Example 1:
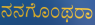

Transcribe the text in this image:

ನನಗೊಂಥರಾ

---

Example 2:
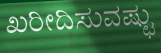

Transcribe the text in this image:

ಖರೀದಿಸುವಷ್ಟು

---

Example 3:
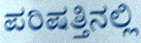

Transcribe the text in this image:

ಪರಿಷತ್ತಿನಲ್ಲಿ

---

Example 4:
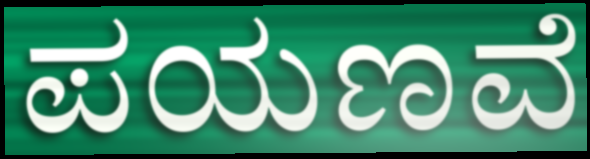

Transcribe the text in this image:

ಪಯಣವೆ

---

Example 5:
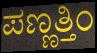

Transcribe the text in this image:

ಪಣ್ಣತ್ತಿಂ